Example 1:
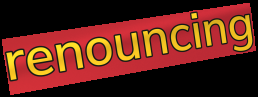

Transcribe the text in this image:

renouncing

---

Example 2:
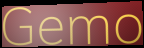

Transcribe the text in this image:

Gemo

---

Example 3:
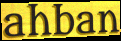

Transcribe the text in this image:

ahban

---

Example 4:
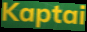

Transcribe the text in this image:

Kaptai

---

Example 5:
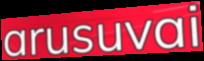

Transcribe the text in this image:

arusuvai